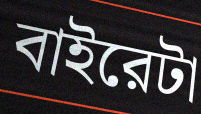
বাইরেটা